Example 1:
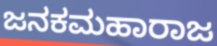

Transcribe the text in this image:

ಜನಕಮಹಾರಾಜ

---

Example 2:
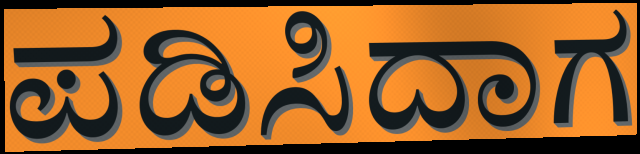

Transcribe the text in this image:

ಪಡಿಸಿದಾಗ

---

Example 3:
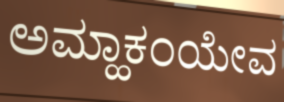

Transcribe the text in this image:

ಅಮ್ಹಾಕಂಯೇವ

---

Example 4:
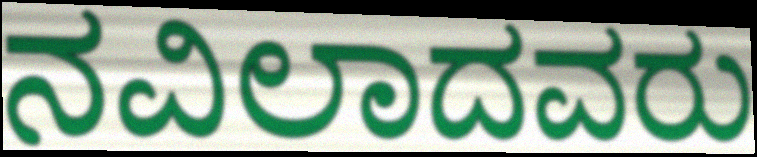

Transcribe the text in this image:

ನವಿಲಾದವರು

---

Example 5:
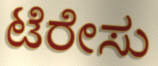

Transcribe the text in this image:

ಟೆರೇಸು